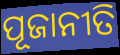
ପୂଜାନୀତି